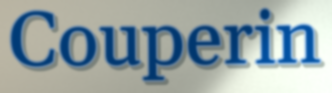
Couperin